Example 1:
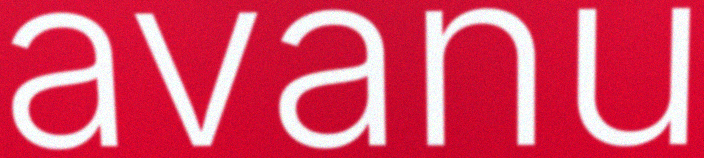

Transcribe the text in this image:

avanu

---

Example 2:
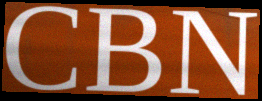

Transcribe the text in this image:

CBN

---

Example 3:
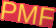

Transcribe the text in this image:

PMF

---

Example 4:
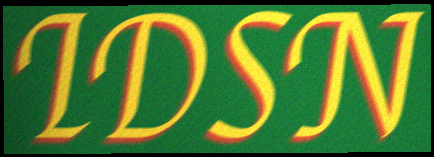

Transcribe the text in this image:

IDSN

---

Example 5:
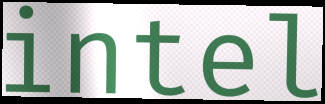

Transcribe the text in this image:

intel